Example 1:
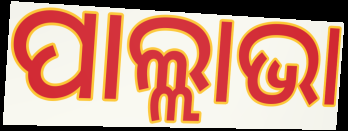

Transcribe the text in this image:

ପାଲ୍ଲାଭା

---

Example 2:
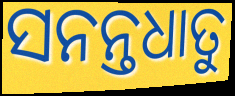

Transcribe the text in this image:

ସନନ୍ତଧାତୁ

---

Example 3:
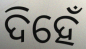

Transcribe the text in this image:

ଦିହେଁ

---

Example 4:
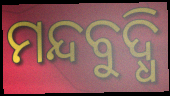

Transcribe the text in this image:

ମନ୍ଦବୁଦ୍ଧି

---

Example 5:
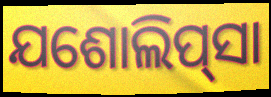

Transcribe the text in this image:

ଯଶୋଲିପ୍‌ସା